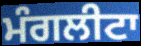
ਮੰਗਲੀਟਾ